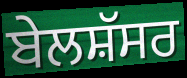
ਬੇਲਸ਼ੱਸਰ